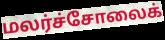
மலர்ச்சோலைக்